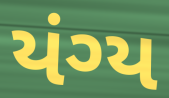
યંગ્ય